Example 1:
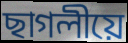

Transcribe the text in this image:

ছাগলীয়ে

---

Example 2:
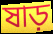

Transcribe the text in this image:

ষাড়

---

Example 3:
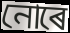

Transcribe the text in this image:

নোৰে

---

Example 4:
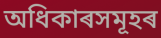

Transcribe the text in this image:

অধিকাৰসমূহৰ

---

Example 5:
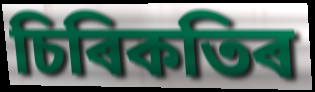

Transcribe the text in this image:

চিৰিকতিৰ